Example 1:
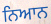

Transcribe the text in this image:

ਨਿਆਨ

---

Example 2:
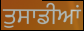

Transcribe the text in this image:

ਤੁਸਾਡੀਆਂ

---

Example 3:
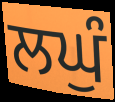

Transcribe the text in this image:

ਲਘੁੰ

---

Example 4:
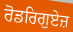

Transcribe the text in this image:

ਰੋਡਰਿਗੁਏਜ਼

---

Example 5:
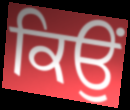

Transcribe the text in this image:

ਕਿਉੰ